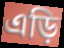
এড়ি